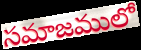
సమాజములో